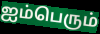
ஐம்பெரும்